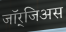
जॉर्जिअस